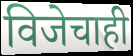
विजेचाही